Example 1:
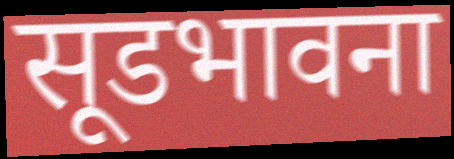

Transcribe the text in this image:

सूडभावना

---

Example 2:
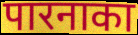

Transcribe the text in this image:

पारनाका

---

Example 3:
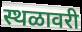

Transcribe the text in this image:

स्थळावरी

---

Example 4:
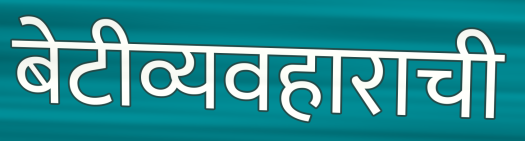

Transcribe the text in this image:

बेटीव्यवहाराची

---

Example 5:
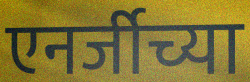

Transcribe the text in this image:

एनर्जीच्या